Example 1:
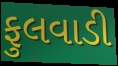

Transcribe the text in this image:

ફુલવાડી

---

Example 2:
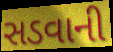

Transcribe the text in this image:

સડવાની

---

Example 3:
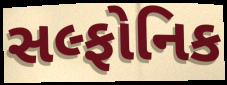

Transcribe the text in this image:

સલ્ફોનિક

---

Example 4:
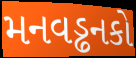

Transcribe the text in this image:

મનવડ્ઢનકો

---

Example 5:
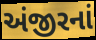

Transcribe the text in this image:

અંજીરનાં